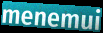
menemui